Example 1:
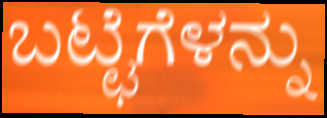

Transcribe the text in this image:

ಬಟ್ಟೆಗೆಳನ್ನು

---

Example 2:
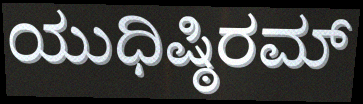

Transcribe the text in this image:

ಯುಧಿಷ್ಠಿರಮ್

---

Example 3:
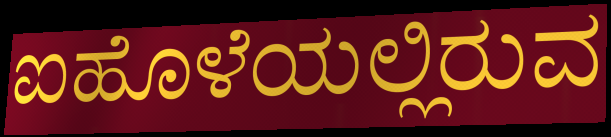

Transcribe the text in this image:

ಐಹೊಳೆಯಲ್ಲಿರುವ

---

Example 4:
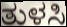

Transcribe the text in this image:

ತುಳಸಿ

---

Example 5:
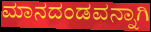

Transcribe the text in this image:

ಮಾನದಂಡವನ್ನಾಗಿ